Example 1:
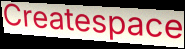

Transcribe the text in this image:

Createspace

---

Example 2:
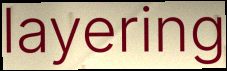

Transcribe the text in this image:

layering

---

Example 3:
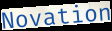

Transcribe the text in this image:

Novation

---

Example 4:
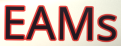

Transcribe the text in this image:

EAMs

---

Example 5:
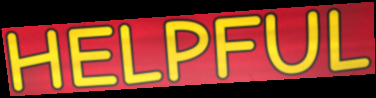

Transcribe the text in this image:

HELPFUL